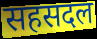
सहसदल